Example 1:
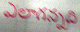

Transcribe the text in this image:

ఎలాగన్నది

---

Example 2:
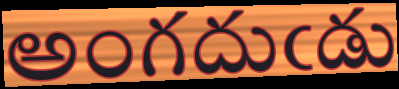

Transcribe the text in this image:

అంగదుఁడు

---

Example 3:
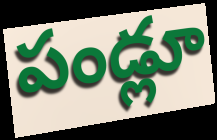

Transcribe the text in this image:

పండ్లూ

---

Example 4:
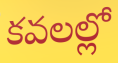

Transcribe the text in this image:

కవలల్లో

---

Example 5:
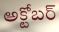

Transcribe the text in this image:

అక్టోబర్